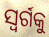
ସ୍ୱର୍ଗକୁ